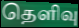
தெளிவு